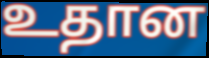
உதான